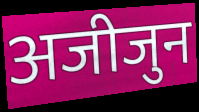
अजीजुन